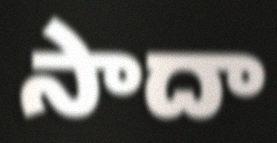
సాదా